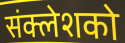
संक्लेशको